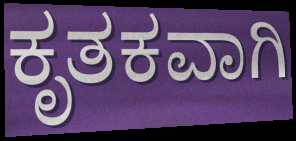
ಕೃತಕವಾಗಿ